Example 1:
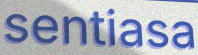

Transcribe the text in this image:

sentiasa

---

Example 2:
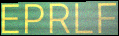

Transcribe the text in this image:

EPRLF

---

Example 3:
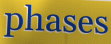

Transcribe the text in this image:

phases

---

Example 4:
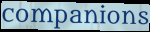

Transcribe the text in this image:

companions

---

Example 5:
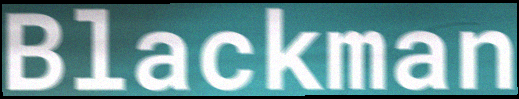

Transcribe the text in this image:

Blackman